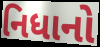
નિધાનો